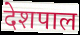
देशपाल